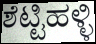
ಶೆಟ್ಟಿಹಳ್ಳಿ